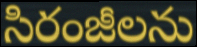
సిరంజీలను